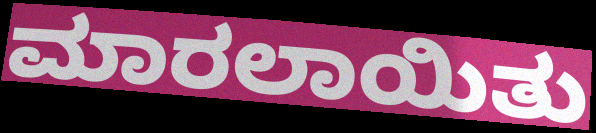
ಮಾರಲಾಯಿತು